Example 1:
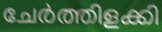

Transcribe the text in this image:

ചേർത്തിളക്കി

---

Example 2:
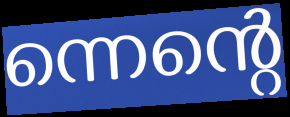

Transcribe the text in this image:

ന്നെന്റെ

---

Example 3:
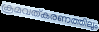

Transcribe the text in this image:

ക്രമവത്കരണത്തിലും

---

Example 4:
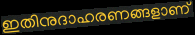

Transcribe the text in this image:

ഇതിനുദാഹരണങ്ങളാണ്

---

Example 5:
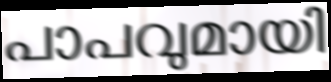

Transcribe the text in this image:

പാപവുമായി